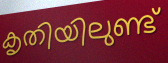
കൃതിയിലുണ്ട്